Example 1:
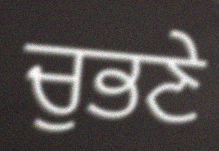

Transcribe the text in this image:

ਚੁਭਣੇ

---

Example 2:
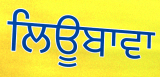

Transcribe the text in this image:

ਲਿਊਬਾਵਾ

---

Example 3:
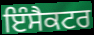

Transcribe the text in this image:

ਇੰਸੈਕਟਰ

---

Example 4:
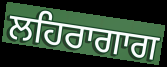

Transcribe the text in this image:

ਲਹਿਰਾਗਾਗ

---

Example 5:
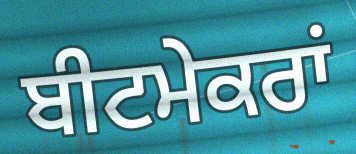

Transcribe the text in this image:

ਬੀਟਮੇਕਰਾਂ